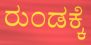
ರುಂಡಕ್ಕೆ